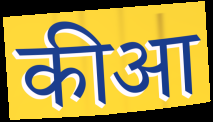
कीआ